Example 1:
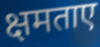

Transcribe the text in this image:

क्षमताए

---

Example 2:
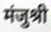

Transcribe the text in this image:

मंजुश्री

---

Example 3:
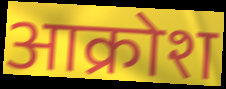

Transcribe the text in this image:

आक्रोश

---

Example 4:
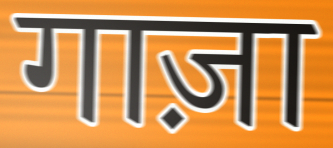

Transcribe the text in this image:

गाज़ा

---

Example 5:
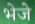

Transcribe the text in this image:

भेजे